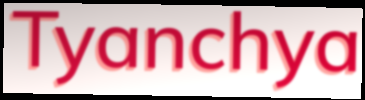
Tyanchya